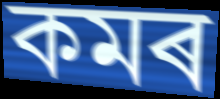
কমৰ